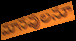
మానవులనూ